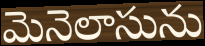
మెనెలాసును